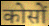
कोसों